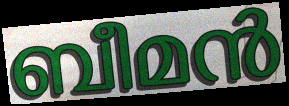
ബീമൻ